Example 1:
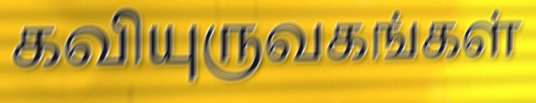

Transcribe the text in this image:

கவியுருவகங்கள்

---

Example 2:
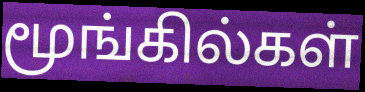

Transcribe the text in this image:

மூங்கில்கள்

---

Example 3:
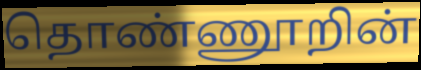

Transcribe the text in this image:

தொண்ணூறின்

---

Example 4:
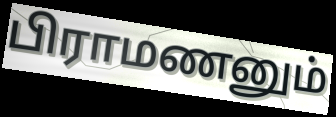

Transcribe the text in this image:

பிராமணனும்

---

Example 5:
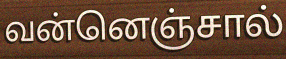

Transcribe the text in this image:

வன்னெஞ்சால்